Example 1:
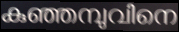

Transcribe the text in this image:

കുഞ്ഞമ്പുവിനെ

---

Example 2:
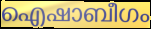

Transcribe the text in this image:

ഐഷാബീഗം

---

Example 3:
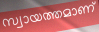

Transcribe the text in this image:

സ്വായത്തമാണ്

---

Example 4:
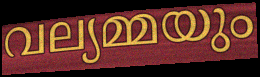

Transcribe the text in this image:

വല്യമ്മയും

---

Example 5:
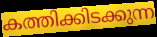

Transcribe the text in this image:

കത്തിക്കിടക്കുന്ന